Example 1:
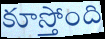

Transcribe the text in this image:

కూస్తోంది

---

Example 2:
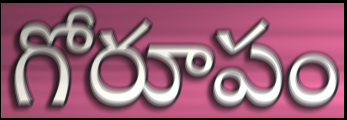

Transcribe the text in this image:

గోరూపం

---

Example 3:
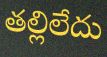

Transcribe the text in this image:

తల్లిలేదు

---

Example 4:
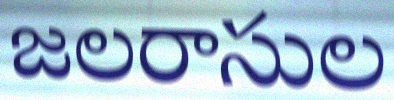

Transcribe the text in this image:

జలరాసుల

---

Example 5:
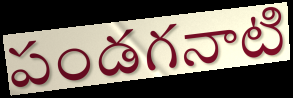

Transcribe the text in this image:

పండగనాటి